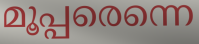
മൂപ്പരെന്നെ